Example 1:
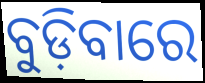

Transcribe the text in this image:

ବୁଡ଼ିବାରେ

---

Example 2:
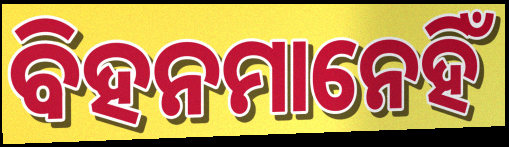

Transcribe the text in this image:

ବିହନମାନେହିଁ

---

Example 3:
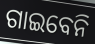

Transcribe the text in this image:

ଗାଇବେନି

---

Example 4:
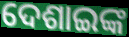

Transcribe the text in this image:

ଦେଶାଇଙ୍କ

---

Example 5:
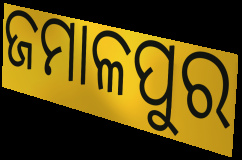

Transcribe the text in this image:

ଜମାଳପୁର